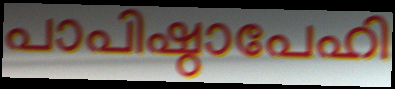
പാപിഷ്ഠാപേഹി